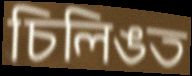
চিলিঙত